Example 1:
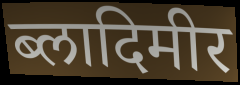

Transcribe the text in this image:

ब्लादिमीर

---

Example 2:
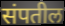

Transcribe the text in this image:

संपतील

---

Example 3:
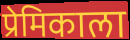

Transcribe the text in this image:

प्रेमिकाला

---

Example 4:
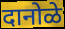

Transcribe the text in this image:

दानोळे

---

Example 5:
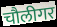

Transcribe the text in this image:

चौलीगर